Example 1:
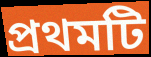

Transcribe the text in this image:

প্ৰথমটি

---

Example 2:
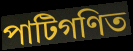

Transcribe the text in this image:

পাটিগণিত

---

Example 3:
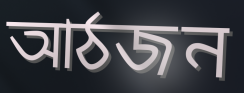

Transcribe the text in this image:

আঠজন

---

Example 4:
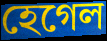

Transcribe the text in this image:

হেগেল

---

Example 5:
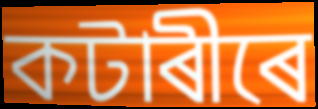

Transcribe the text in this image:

কটাৰীৰে